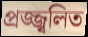
প্রজ্জ্বলিত